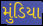
મુંડિયા